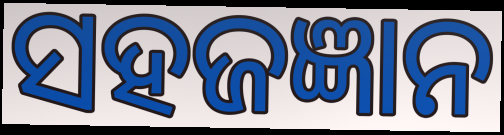
ସହଜଜ୍ଞାନ